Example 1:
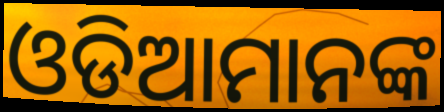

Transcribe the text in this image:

ଓଡିଆମାନଙ୍କ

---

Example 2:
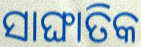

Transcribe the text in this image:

ସାଙ୍ଘାତିକ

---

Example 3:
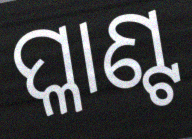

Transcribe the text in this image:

ପ୍ଳାଣ୍ଟ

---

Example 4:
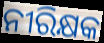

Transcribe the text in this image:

ନୀରିକ୍ଷକ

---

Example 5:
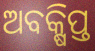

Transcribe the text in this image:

ଅବକ୍ଷିପ୍ତ